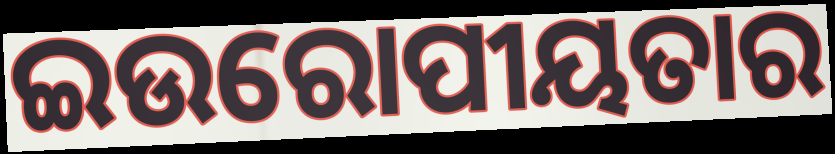
ଇଉରୋପୀୟତାର